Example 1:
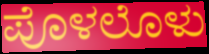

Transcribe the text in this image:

ಪೊಳಲೊಳು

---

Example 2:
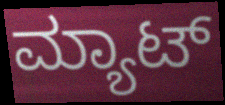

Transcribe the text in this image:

ಮ್ಯಾಟ್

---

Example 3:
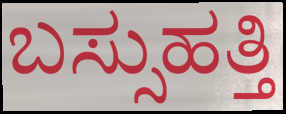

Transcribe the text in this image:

ಬಸ್ಸುಹತ್ತಿ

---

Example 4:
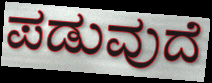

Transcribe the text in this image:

ಪಡುವುದೆ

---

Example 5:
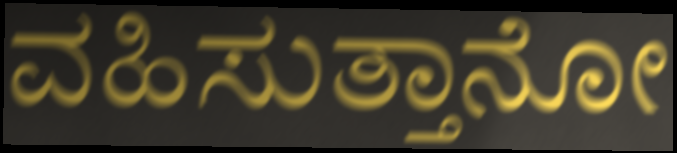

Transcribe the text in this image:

ವಹಿಸುತ್ತಾನೋ